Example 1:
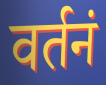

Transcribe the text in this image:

वर्तनं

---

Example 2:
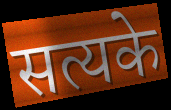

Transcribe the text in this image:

सत्यके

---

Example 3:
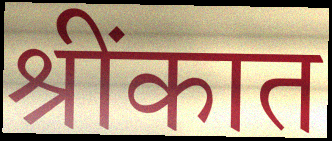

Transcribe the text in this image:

श्रींकात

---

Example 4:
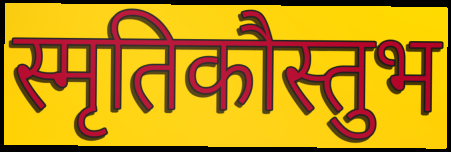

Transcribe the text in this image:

स्मृतिकौस्तुभ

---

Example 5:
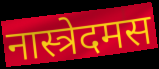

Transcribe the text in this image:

नास्त्रेदमस